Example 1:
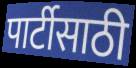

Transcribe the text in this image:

पार्टीसाठी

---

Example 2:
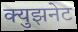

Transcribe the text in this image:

क्युझनेट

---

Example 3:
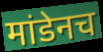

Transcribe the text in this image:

मांडेनच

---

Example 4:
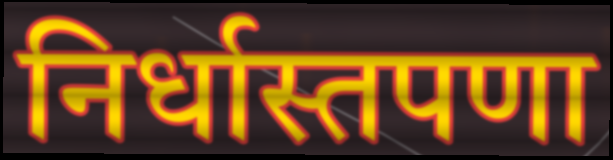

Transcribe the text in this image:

निर्धास्तपणा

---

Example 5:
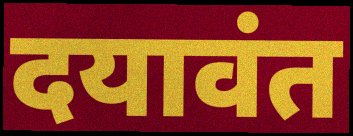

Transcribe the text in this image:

दयावंत